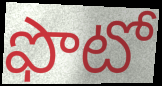
ఫొటో